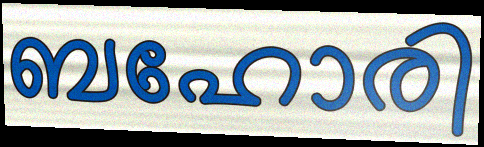
ബഹോരി